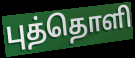
புத்தொளி